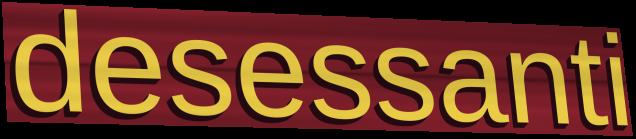
desessanti